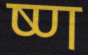
ष्ण